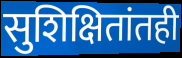
सुशिक्षितांतही